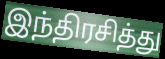
இந்திரசித்து